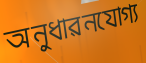
অনুধাৱনযোগ্য